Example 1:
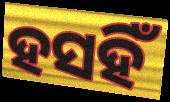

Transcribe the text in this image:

ହସହିଁ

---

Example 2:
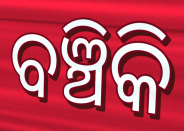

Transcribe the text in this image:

ବଞ୍ଚିକି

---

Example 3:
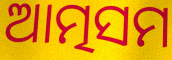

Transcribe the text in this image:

ଆତ୍ମସମ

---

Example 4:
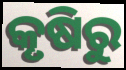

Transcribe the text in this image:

କୃଷିରୁ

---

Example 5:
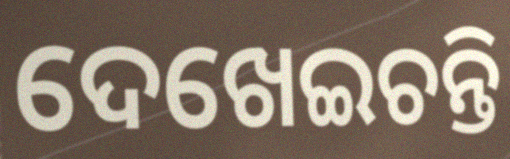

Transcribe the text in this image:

ଦେଖେଇଚନ୍ତି